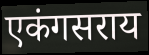
एकंगसराय